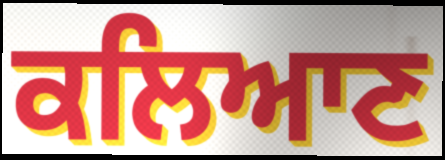
ਕਲਿਆਣ